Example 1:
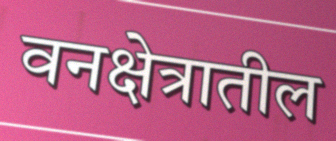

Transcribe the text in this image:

वनक्षेत्रातील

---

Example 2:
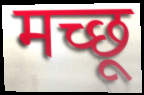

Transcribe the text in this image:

मच्छू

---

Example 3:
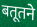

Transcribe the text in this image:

बतूतने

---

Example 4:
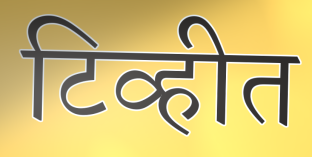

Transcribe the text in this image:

टिव्हीत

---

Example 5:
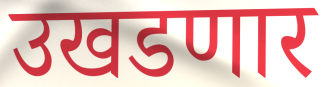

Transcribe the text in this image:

उखडणार